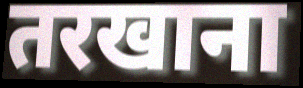
तरखाना